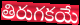
తిరుగకయే